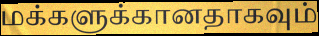
மக்களுக்கானதாகவும்